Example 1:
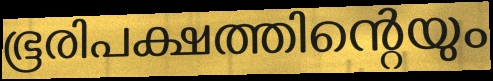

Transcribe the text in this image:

ഭൂരിപക്ഷത്തിന്റെയും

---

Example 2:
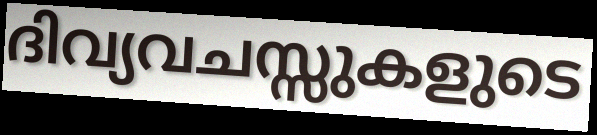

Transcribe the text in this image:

ദിവ്യവചസ്സുകളുടെ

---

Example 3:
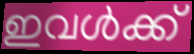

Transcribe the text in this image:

ഇവൾക്ക്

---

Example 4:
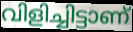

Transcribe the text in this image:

വിളിച്ചിട്ടാണ്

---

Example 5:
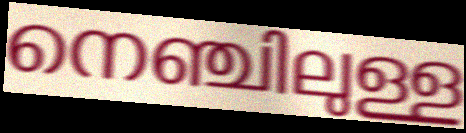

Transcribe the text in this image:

നെഞ്ചിലുള്ള